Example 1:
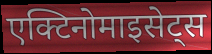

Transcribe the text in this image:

एक्टिनोमाइसेट्स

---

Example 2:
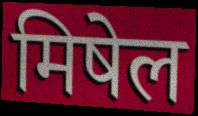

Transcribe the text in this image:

मिषेल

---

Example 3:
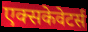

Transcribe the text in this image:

एक्सकेवेटर्स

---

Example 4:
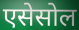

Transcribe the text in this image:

एसेसोल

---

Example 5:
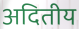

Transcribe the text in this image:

अदितीय